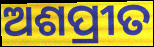
ଅଶପ୍ରୀତ